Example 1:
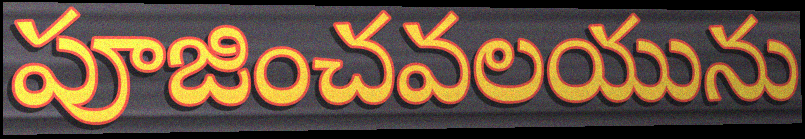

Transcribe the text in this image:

పూజించవలయును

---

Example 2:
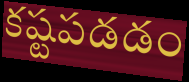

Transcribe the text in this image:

కష్టపడడం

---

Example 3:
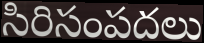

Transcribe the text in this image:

సిరిసంపదలు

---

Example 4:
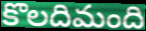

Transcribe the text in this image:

కొలదిమంది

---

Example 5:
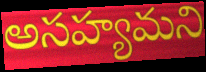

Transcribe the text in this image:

అసహ్యమని